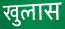
खुलास